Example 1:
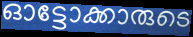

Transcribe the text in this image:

ഓട്ടോക്കാരുടെ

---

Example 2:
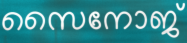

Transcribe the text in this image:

സൈനോജ്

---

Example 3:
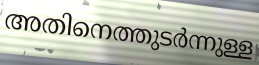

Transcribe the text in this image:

അതിനെത്തുടർന്നുള്ള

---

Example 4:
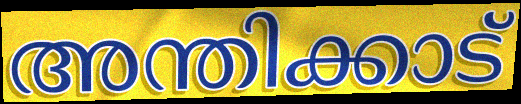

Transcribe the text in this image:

അന്തിക്കാട്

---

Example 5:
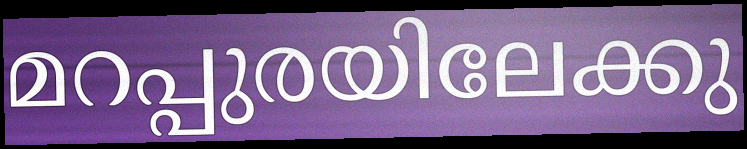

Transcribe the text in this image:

മറപ്പുരയിലേക്കു